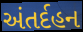
અંતર્દહન